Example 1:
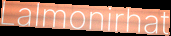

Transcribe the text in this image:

Lalmonirhat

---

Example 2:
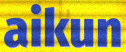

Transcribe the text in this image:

aikun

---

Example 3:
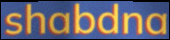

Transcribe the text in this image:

shabdna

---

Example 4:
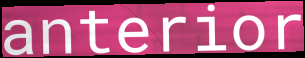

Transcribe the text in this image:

anterior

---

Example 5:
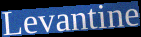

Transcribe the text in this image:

Levantine